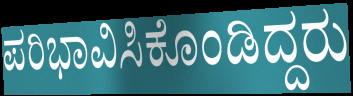
ಪರಿಭಾವಿಸಿಕೊಂಡಿದ್ದರು